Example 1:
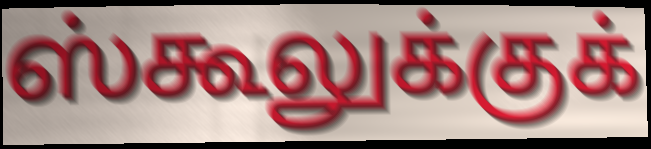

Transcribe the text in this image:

ஸ்கூலுக்குக்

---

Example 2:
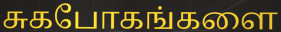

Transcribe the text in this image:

சுகபோகங்களை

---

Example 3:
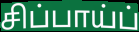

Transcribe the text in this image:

சிப்பாய்ப்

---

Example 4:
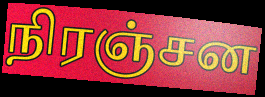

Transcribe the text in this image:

நிரஞ்சன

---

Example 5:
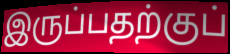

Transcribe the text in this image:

இருப்பதற்குப்